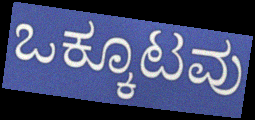
ಒಕ್ಕೂಟವು